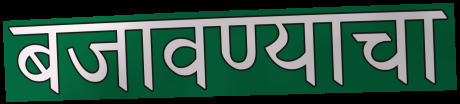
बजावण्याचा